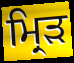
ਮ੍ਰਿੜ